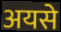
अयसे